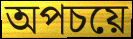
অপচয়ে